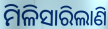
ମିଳିସାରିଲାଣି